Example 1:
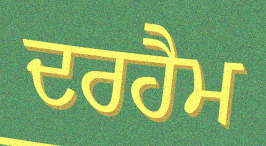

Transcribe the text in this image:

ਦਰਹੈਮ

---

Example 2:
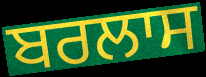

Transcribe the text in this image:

ਬਰਲਾਸ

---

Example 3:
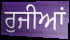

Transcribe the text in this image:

ਰੁਜੀਆਂ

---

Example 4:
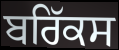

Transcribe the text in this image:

ਬਰਿੱਕਸ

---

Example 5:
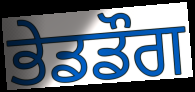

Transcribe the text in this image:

ਭੇਡਡੌਗ